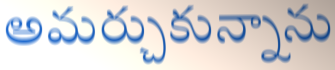
అమర్చుకున్నాను